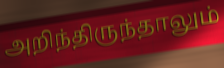
அறிந்திருந்தாலும்